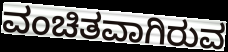
ವಂಚಿತವಾಗಿರುವ